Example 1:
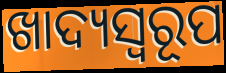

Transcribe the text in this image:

ଖାଦ୍ୟସ୍ୱରୂପ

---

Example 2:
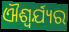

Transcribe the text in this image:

ଐଶ୍ୱର୍ଯ୍ୟର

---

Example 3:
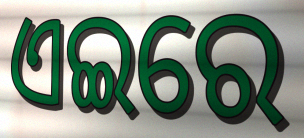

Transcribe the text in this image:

ଏଇରେ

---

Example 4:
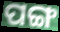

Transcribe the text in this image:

ପଙ୍ଗ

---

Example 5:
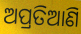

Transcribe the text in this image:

ଅପ୍ରତିଆଣି